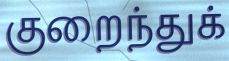
குறைந்துக்